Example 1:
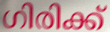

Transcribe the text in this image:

ഗിരിക്ക്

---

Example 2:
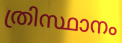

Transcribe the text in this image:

ത്രിസ്ഥാനം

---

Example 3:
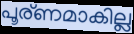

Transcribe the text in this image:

പൂര്ണമാകില്ല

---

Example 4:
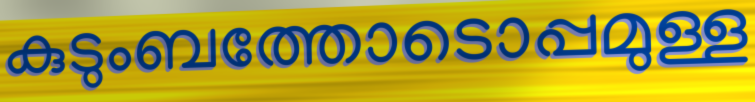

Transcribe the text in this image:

കുടുംബത്തോടൊപ്പമുള്ള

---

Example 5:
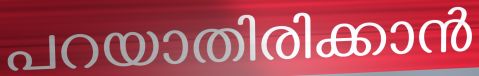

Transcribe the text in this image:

പറയാതിരിക്കാൻ